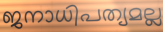
ജനാധിപത്യമല്ല